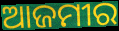
ଆଜମୀର